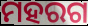
ମହରଗ